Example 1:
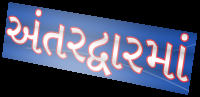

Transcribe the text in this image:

અંતરદ્વારમાં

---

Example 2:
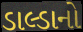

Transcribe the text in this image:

ડાલ્ડાનો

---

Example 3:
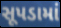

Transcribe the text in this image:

સૂપડામાં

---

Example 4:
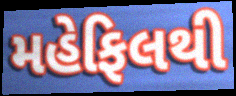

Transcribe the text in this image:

મહેફિલથી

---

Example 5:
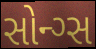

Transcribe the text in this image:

સોન્ગ્સ